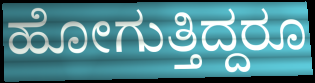
ಹೋಗುತ್ತಿದ್ದರೂ